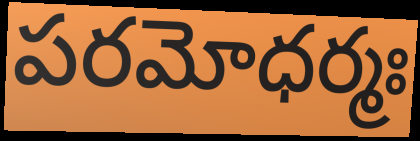
పరమోధర్మః